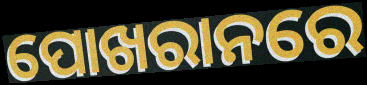
ପୋଖରାନରେ